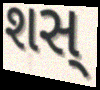
શસ્